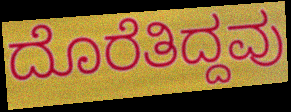
ದೊರೆತಿದ್ದವು